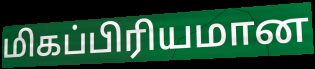
மிகப்பிரியமான